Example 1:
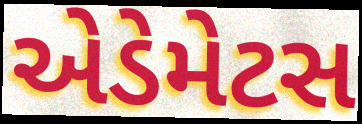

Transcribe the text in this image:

એડેમેટસ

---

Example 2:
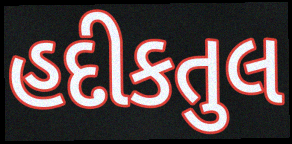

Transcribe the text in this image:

હદીકતુલ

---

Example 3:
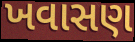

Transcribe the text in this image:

ખવાસણ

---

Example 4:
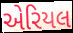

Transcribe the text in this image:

એરિયલ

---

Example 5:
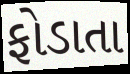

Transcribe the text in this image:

ફોડાતા